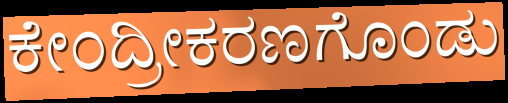
ಕೇಂದ್ರೀಕರಣಗೊಂಡು